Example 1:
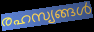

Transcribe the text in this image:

രഹസ്യങ്ങൾ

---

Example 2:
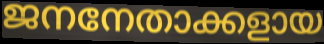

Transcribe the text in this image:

ജനനേതാക്കളായ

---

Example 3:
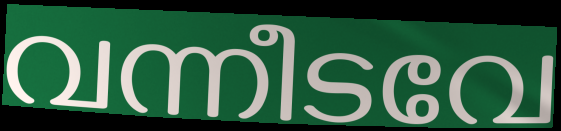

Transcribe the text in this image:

വന്നീടവേ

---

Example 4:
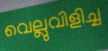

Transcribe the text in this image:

വെല്ലുവിളിച്ച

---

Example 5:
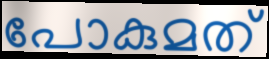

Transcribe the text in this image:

പോകുമത്